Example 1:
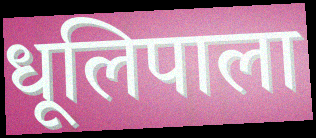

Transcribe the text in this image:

धूलिपाला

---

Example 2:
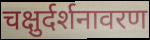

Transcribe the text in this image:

चक्षुर्दर्शनावरण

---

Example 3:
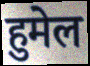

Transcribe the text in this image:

हुमेल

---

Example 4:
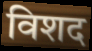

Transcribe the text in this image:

विशद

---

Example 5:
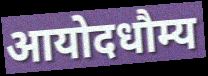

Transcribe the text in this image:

आयोदधौम्य